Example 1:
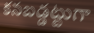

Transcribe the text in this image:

కనబడ్డట్టుగా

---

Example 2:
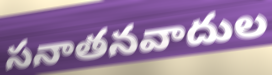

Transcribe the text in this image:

సనాతనవాదుల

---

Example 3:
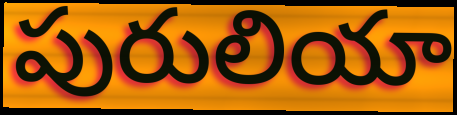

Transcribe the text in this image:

పురులియా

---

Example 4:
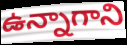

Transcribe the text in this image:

ఉన్నాగాని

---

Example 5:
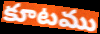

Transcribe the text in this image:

కూటము